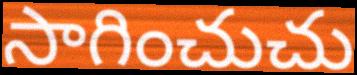
సాగించుచు